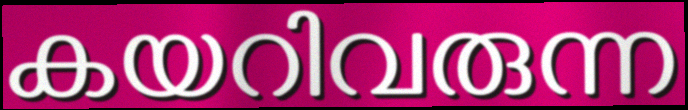
കയറിവരുന്ന